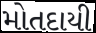
મોતદાયી